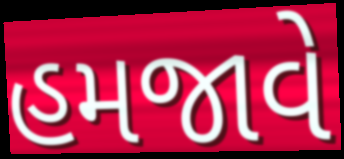
હમજાવે